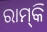
ରାମ୍‌କି